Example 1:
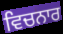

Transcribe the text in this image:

ਵਿਚਨਾਰ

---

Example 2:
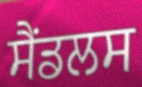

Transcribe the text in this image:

ਸੈਂਡਲਸ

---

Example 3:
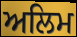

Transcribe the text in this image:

ਅਲਿਮ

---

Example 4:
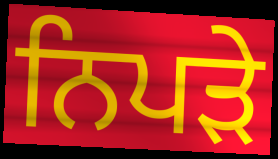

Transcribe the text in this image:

ਨਿਪੜੇ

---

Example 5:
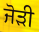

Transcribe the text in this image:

ਜੋਡ਼ੀ